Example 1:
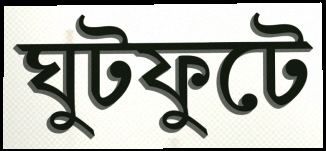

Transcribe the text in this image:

ঘুটফুটে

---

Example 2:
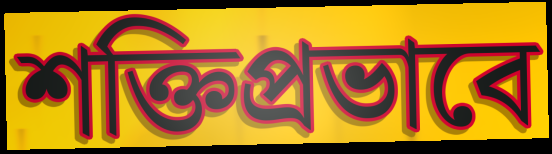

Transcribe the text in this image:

শক্তিপ্রভাবে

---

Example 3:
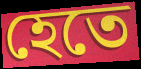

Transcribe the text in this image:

হেতে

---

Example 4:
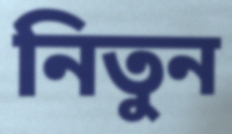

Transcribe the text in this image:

নিতুন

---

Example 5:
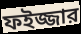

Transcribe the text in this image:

ফইজ্জার